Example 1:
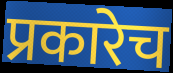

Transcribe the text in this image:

प्रकारेच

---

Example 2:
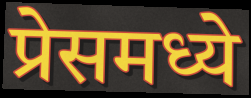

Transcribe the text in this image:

प्रेसमध्ये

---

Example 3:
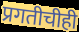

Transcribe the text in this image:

प्रगतीचीही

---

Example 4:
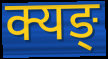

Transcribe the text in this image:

क्यङ्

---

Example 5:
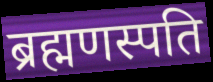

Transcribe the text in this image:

ब्रह्मणस्पति